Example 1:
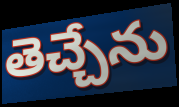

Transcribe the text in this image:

తెచ్చేను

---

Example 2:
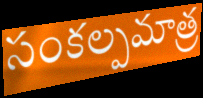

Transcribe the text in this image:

సంకల్పమాత్ర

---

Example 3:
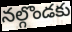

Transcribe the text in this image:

నల్గొండకు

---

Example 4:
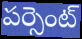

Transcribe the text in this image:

పర్సెంట్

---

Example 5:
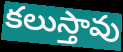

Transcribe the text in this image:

కలుస్తావు